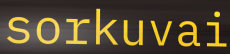
sorkuvai